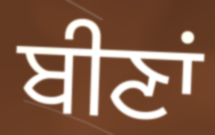
ਬੀਣਾਂ